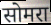
सोमरा